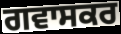
ਗਵਾਸਕਰ